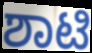
ಶಾಟಿ